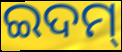
ଇଦମ୍